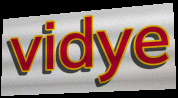
vidye